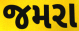
જમરા